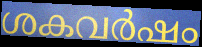
ശകവർഷം